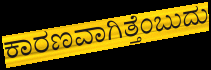
ಕಾರಣವಾಗಿತ್ತೆಂಬುದು